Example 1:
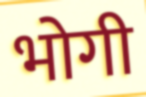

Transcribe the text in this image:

भोगी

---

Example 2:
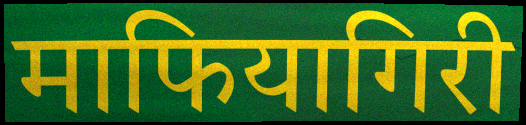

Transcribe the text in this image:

माफियागिरी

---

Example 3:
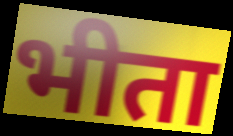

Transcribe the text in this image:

भीता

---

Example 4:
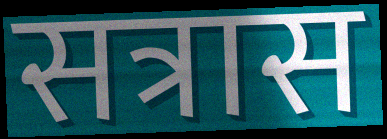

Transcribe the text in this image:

सत्रास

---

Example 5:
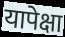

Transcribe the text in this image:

यापेक्षा